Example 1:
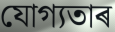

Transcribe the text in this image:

যোগ্যতাৰ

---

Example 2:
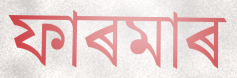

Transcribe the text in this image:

ফাৰমাৰ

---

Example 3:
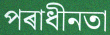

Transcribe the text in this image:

পৰাধীনতা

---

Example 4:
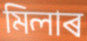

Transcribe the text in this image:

মিলাৰ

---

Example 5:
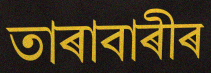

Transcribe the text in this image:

তাৰাবাৰীৰ